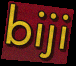
biji